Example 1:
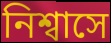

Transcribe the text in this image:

নিশ্বাসে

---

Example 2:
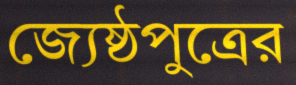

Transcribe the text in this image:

জ্যেষ্ঠপুত্রের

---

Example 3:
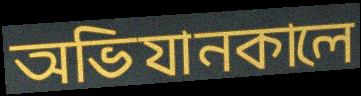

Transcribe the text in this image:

অভিযানকালে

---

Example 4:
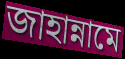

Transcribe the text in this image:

জাহান্নামে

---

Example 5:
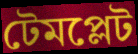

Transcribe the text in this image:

টেমপ্লেট